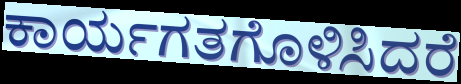
ಕಾರ್ಯಗತಗೊಳಿಸಿದರೆ